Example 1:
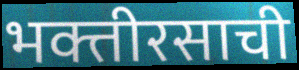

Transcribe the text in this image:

भक्तीरसाची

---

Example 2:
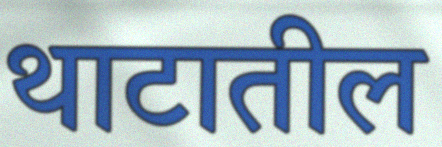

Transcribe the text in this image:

थाटातील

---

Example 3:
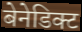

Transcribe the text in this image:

बेनेडिक्ट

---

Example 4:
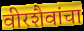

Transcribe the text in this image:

वीरशैवांचा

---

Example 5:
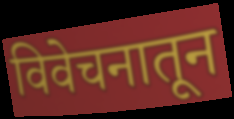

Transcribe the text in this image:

विवेचनातून